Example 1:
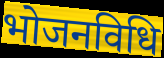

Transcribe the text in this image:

भोजनविधि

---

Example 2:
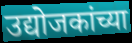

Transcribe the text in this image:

उद्योजकांच्या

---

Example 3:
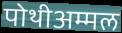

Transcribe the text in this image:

पोथीअम्मल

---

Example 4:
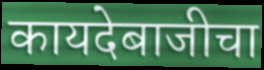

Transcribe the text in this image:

कायदेबाजीचा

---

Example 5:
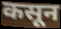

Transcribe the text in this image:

कसून